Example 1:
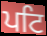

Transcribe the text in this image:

ਪਟਿ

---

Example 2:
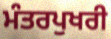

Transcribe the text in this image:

ਮੰਤਰਪੁਖਰੀ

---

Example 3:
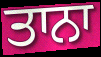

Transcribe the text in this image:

ਤਾਨਾ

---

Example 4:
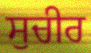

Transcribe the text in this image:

ਸੁਚੀਰ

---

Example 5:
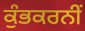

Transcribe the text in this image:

ਕੁੰਭਕਰਨੀਂ